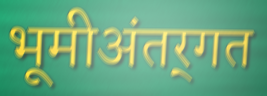
भूमीअंतर्गत